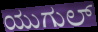
ಯುಗುಲ್